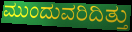
ಮುಂದುವರಿದಿತ್ತು